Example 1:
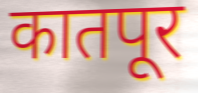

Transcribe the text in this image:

कातपूर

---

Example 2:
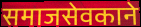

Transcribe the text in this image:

समाजसेवकाने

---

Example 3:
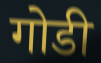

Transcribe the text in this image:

गोडी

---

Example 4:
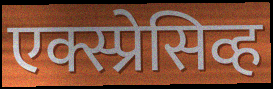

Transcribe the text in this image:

एक्स्प्रेसिव्ह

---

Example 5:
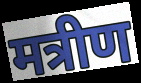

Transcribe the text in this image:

मत्रीण